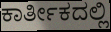
ಕಾರ್ತೀಕದಲ್ಲಿ